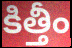
కిత్తీం